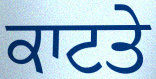
ਕਾਟਤੇ